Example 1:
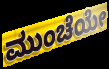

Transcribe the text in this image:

ಮುಂಚೆಯೇ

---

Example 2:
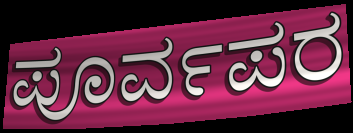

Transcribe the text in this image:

ಪೂರ್ವಪರ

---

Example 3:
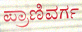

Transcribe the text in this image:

ಪ್ರಾಣಿವರ್ಗ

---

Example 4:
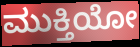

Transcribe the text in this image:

ಮುಕ್ತಿಯೋ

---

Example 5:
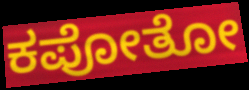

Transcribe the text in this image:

ಕಪೋತೋ